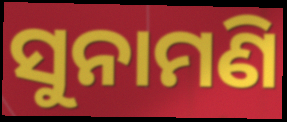
ସୁନାମଣି